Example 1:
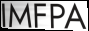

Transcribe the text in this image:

IMFPA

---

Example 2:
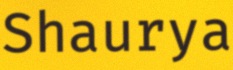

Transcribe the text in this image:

Shaurya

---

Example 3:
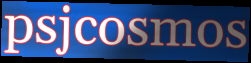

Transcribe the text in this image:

psjcosmos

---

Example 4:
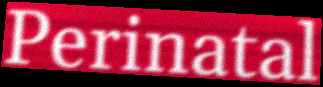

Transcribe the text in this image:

Perinatal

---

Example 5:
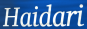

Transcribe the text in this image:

Haidari